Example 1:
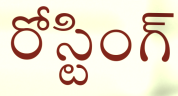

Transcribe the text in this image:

రోస్టింగ్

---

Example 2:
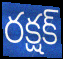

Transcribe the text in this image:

రక్షక్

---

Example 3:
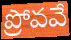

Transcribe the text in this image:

ప్రోవవే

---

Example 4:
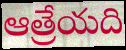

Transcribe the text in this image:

ఆత్రేయది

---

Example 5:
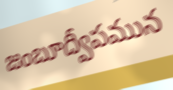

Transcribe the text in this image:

జంబూద్వీపమున